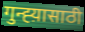
गुन्ह्य़ासाठी